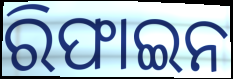
ରିଫାଇନ